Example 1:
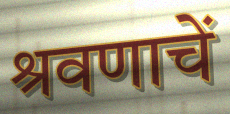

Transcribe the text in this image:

श्रवणाचें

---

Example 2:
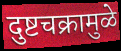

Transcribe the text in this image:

दुष्टचक्रामुळे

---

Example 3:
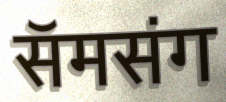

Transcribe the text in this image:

सॅमसंग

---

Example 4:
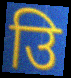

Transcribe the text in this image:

उि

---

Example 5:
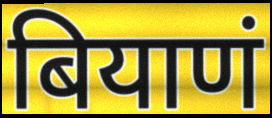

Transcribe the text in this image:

बियाणं